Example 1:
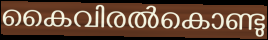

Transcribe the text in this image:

കൈവിരൽകൊണ്ടു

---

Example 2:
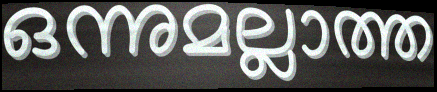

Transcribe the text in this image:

ഒന്നുമല്ലാത്ത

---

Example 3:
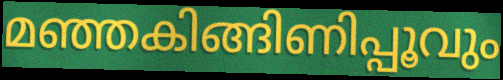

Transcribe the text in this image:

മഞ്ഞകിങ്ങിണിപ്പൂവും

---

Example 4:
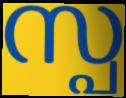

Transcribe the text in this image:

സ്പ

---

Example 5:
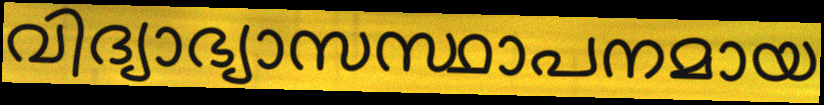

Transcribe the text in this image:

വിദ്യാഭ്യാസസ്ഥാപനമായ